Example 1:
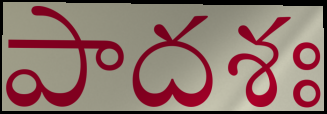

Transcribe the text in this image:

పాదశః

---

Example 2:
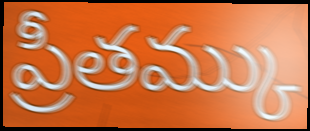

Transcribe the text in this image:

ప్రీతమ్కు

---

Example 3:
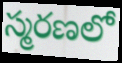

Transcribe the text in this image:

స్మరణలో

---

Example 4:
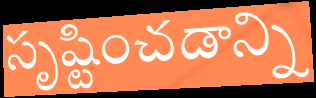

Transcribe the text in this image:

సృష్టించడాన్ని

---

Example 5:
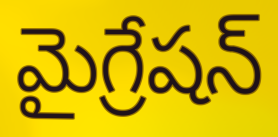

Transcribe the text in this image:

మైగ్రేషన్